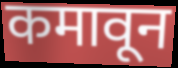
कमावून